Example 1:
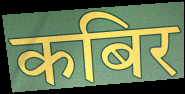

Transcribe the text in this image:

कबिर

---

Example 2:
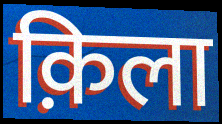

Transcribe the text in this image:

क़िला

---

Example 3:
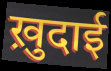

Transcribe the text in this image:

ख़ुदाई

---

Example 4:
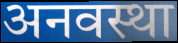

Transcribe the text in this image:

अनवस्था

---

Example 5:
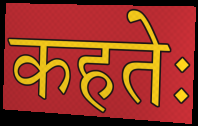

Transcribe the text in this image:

कहतेः